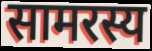
सामरस्य